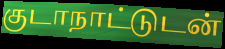
குடாநாட்டுடன்